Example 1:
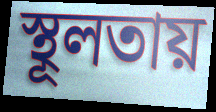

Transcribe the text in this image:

স্থূলতায়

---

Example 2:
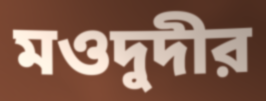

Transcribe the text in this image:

মওদুদীর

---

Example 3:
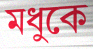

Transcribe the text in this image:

মধুকে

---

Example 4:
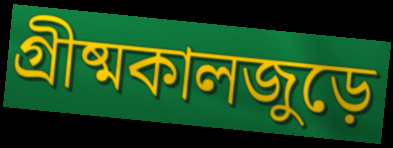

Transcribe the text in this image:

গ্রীষ্মকালজুড়ে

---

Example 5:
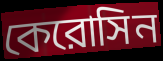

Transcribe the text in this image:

কেরোসিন